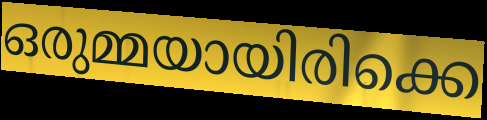
ഒരുമ്മയായിരിക്കെ